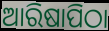
ଆରିଷାପିଠା